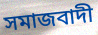
সমাজবাদী